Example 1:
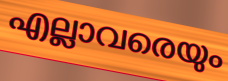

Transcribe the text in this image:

എല്ലാവരെയും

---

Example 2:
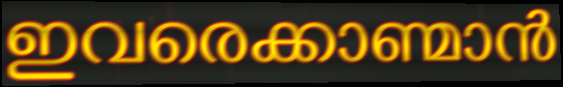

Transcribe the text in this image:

ഇവരെക്കാണ്മാൻ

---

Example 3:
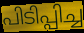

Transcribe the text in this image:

പിടിപ്പിച്ച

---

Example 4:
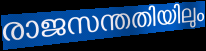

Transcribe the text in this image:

രാജസന്തതിയിലും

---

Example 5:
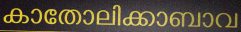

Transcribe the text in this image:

കാതോലിക്കാബാവ